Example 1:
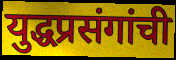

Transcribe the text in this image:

युद्धप्रसंगांची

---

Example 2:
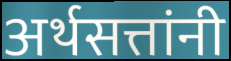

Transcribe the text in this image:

अर्थसत्तांनी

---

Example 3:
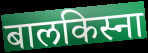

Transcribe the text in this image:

बालकिस्ना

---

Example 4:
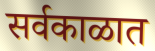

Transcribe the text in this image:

सर्वकाळात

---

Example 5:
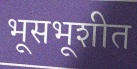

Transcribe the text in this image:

भूसभूशीत